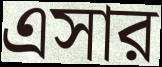
এসার